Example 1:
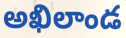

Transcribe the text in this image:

అఖిలాండ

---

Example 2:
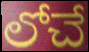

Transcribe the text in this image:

లోచే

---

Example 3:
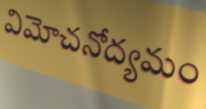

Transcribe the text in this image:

విమోచనోద్యమం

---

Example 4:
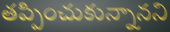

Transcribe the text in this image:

తప్పించుకున్నానని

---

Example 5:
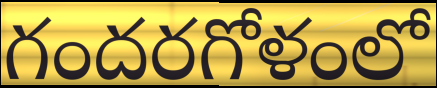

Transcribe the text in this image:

గందరగోళంలో